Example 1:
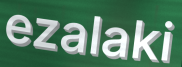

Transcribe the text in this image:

ezalaki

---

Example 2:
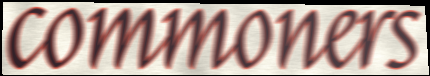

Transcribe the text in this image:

commoners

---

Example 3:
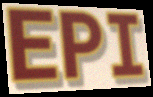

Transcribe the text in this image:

EPI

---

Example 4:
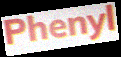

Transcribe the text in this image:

Phenyl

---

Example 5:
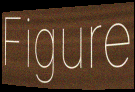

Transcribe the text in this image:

Figure